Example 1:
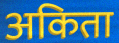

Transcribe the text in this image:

अकिता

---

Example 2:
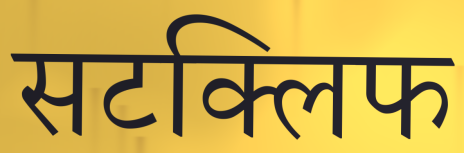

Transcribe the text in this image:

सटक्लिफ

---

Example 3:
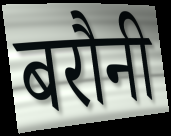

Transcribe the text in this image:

बरौनी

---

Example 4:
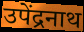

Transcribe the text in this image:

उपेंद्रनाथ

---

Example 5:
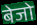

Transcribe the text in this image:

बेजो